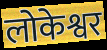
लोकेश्वर